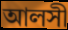
আলসী